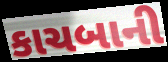
કાચબાની